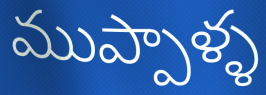
ముప్పాళ్ళ